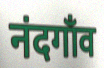
नंदगाँव